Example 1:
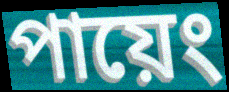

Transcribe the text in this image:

পায়েং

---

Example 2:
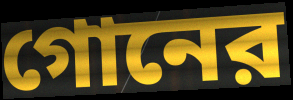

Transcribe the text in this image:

গোনের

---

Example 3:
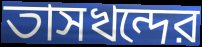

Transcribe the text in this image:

তাসখন্দের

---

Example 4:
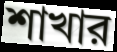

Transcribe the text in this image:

শাখার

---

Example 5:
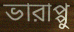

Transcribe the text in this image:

ভারাপ্পু